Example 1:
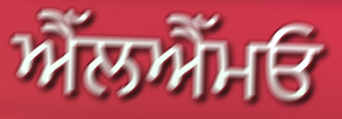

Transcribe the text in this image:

ਐੱਲਐੱਮਓ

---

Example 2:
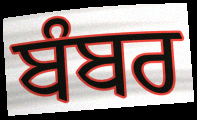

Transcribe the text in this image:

ਬੰਬਰ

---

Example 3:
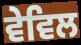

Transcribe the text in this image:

ਵੇਵਿਲ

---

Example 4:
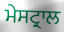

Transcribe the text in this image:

ਮੇਸਟ੍ਰਾਲ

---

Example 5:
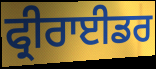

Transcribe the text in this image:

ਫ੍ਰੀਰਾਈਡਰ